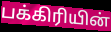
பக்கிரியின்